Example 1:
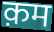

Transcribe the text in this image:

क़म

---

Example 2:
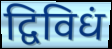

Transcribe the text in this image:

द्विविधं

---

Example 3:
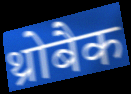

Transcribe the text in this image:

थ्रोबैक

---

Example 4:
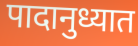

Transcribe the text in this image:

पादानुध्यात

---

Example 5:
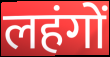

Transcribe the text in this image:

लहंगों